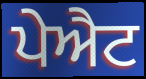
ਪੇਐਟ